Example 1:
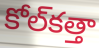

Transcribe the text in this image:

కోల్‌కత్తా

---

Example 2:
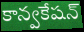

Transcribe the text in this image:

కాన్వకేషన్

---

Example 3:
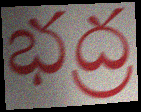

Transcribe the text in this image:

భద్ర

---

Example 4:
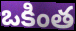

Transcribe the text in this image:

ఒకింత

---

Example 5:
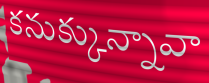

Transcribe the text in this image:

కనుక్కున్నావా